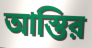
আস্তির